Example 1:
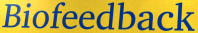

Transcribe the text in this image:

Biofeedback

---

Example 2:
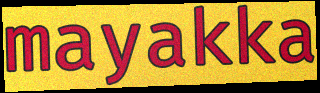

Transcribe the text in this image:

mayakka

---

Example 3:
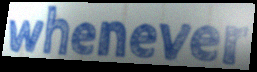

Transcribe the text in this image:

whenever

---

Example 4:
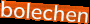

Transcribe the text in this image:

bolechen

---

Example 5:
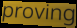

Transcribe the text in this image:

proving